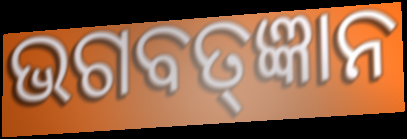
ଭଗବତ୍‌ଜ୍ଞାନ